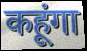
कहूंगा